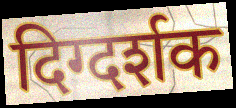
दिग्दर्शक